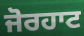
ਜੋਰਹਾਟ